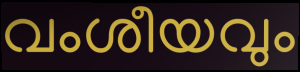
വംശീയവും